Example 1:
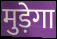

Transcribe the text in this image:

मुड़ेगा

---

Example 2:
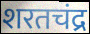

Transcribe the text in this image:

शरतचंद्र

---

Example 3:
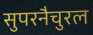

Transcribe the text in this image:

सुपरनैचुरल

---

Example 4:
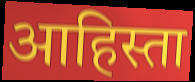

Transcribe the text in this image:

आहिस्ता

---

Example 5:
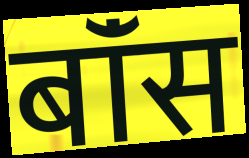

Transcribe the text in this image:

बॉंस